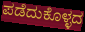
ಪಡೆದುಕೊಳ್ಳದ